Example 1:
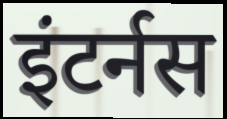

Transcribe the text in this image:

इंटर्नस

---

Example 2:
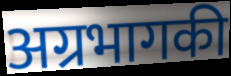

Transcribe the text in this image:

अग्रभागकी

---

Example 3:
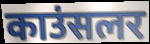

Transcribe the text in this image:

काउंसलर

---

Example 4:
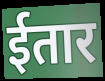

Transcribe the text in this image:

ईतार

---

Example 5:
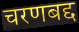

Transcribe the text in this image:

चरणबद्द